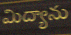
మిద్యాను